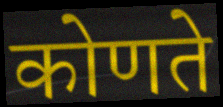
कोणते